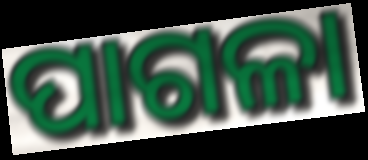
ପାଗଳା